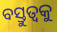
ବସ୍ତୁତ୍ଵକୁ